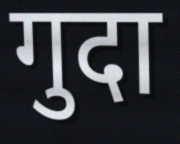
गुदा